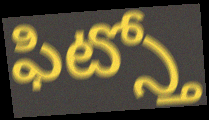
ఫిట్స్తో